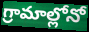
గ్రామాల్లోనో